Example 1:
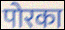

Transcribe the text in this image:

पोरका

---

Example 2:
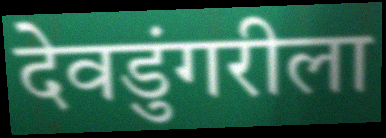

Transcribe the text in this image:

देवडुंगरीला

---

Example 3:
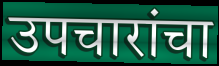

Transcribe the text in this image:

उपचारांचा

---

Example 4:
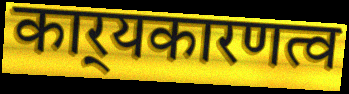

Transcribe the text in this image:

कार्यकारणत्व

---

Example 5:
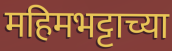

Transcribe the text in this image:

महिमभट्टाच्या